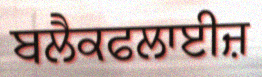
ਬਲੈਕਫਲਾਈਜ਼